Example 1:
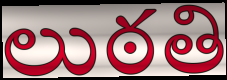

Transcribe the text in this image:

లుఠతి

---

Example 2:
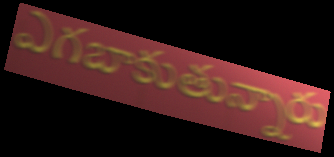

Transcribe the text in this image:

ఎగబాకుతున్నారు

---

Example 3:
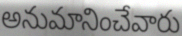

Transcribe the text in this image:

అనుమానించేవారు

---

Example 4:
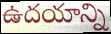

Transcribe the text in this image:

ఉదయాన్ని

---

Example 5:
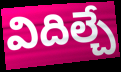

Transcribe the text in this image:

విదిల్చే